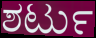
ಶರ್ಟು